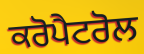
ਕਰੋਪੈਟਰੋਲ